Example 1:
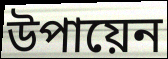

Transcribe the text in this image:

উপায়েন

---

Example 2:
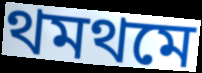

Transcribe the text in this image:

থমথমে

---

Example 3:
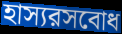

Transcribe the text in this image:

হাস্যরসবোধ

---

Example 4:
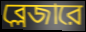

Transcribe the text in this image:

ব্লেজারে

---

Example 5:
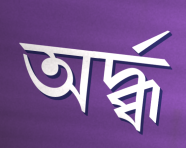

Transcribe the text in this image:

অর্দ্ধ্ব